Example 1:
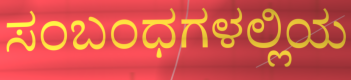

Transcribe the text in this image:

ಸಂಬಂಧಗಳಲ್ಲಿಯ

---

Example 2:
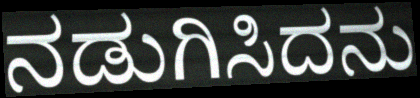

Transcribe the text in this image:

ನಡುಗಿಸಿದನು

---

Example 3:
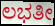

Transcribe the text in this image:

ಲಭತೀ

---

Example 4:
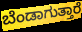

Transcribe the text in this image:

ಬೆಂಡಾಗುತ್ತಾರೆ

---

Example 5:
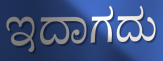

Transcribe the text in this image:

ಇದಾಗದು